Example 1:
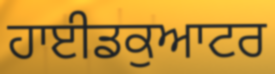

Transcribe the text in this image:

ਹਾਈਡਕੁਆਟਰ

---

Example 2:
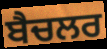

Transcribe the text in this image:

ਬੈਚਲਰ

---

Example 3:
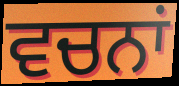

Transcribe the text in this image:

ਵਚਨਾਂ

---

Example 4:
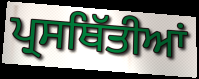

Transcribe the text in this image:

ਪ੍ਰਸਥਿੱਤੀਆਂ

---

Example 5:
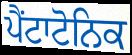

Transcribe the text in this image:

ਪੈਂਟਾਟੋਨਿਕ